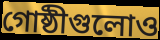
গোষ্ঠীগুলোও